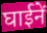
घाईनें